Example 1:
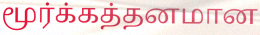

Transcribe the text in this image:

மூர்க்கத்தனமான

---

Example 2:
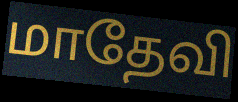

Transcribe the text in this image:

மாதேவி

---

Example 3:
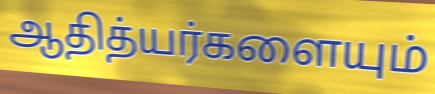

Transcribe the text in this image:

ஆதித்யர்களையும்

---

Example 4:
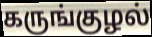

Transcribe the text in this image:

கருங்குழல்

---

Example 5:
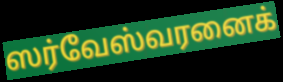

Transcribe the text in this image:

ஸர்வேஸ்வரனைக்